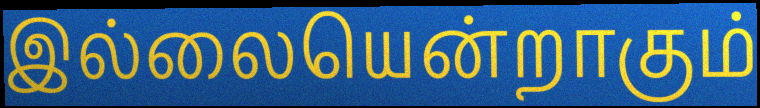
இல்லையென்றாகும்